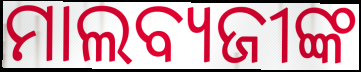
ମାଲବ୍ୟଜୀଙ୍କ